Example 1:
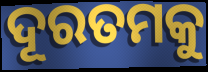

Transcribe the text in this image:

ଦୂରତମକୁ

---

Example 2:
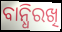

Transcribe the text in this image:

ବାନ୍ଧିରଖି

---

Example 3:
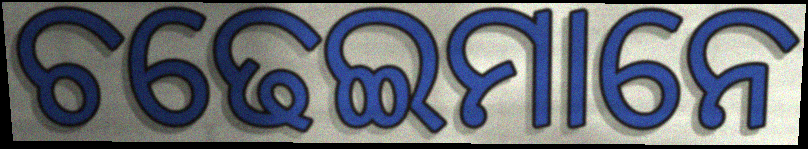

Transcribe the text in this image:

ଚଢେଇମାନେ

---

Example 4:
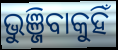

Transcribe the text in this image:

ଭୁଞ୍ଜିବାକୁହିଁ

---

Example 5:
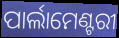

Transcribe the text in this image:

ପାର୍ଲାମେଣ୍ଟରୀ